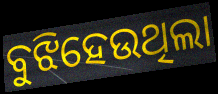
ବୁଝିହେଉଥିଲା